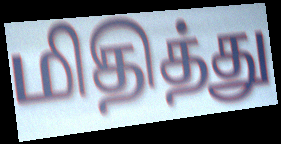
மிதித்து